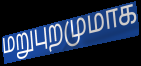
மறுபுறமுமாக